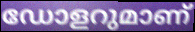
ഡോളറുമാണ്